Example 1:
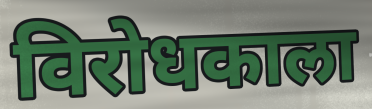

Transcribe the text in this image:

विरोधकाला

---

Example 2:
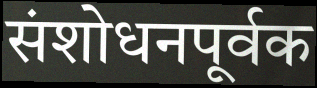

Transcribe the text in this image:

संशोधनपूर्वक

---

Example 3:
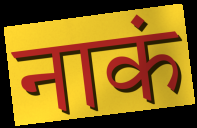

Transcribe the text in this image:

नाकं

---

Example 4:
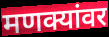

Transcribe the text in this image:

मणक्यांवर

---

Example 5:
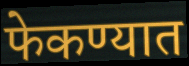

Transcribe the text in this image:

फेकण्यात